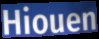
Hiouen